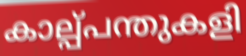
കാല്പ്പന്തുകളി